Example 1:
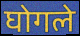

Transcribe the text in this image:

घोगले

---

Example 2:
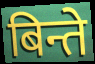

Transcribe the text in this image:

बिन्ते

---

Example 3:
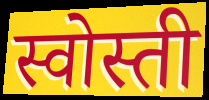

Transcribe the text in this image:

स्वोस्ती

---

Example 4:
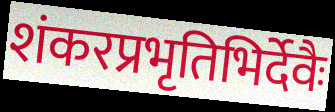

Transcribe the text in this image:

शंकरप्रभृतिभिर्देवैः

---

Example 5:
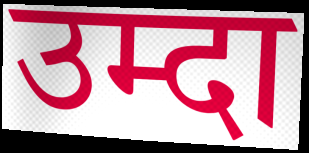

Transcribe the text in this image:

उम्‍दा